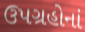
ઉપગ્રહોનાં